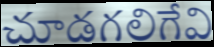
చూడగలిగేవి